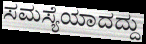
ಸಮಸ್ಯೆಯಾದದ್ದು